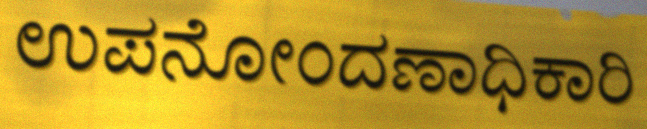
ಉಪನೋಂದಣಾಧಿಕಾರಿ